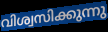
വിശ്വസിക്കുന്നു